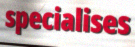
specialises